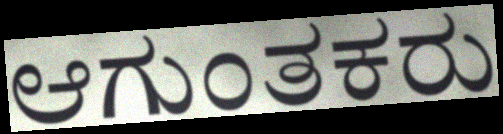
ಆಗುಂತಕರು